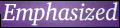
Emphasized